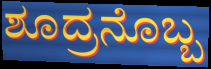
ಶೂದ್ರನೊಬ್ಬ